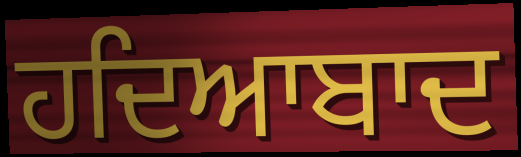
ਹਦਿਆਬਾਦ